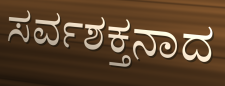
ಸರ್ವಶಕ್ತನಾದ